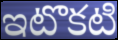
ఇటొకటి